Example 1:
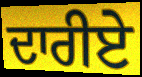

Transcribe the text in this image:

ਦਾਰੀਏ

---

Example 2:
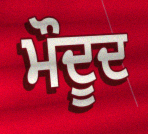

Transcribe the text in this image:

ਮੌਦੂਦ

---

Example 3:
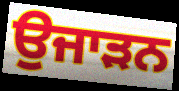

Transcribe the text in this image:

ਉਜਾੜਨ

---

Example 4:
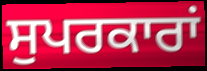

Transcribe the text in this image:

ਸੁਪਰਕਾਰਾਂ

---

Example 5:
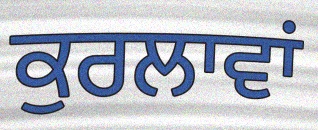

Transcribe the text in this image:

ਕੁਰਲਾਵਾਂ